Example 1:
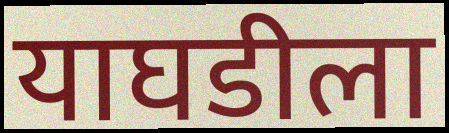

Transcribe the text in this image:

याघडीला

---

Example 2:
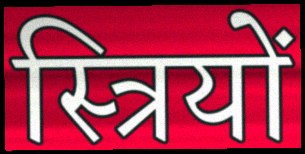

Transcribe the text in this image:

स्त्रियों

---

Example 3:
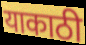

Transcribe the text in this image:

याकाठी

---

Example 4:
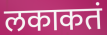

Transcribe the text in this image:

लकाकतं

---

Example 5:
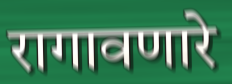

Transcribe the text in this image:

रागावणारे